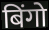
बिंगो